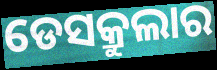
ଡେସକ୍ରୁଲାର